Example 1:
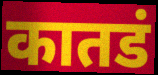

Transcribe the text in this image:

कातडं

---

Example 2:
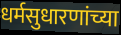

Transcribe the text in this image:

धर्मसुधारणांच्या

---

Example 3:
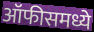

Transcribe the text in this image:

ऑफीसमध्ये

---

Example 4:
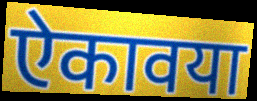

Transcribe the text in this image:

ऐकावया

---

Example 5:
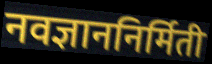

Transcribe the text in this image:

नवज्ञाननिर्मिती